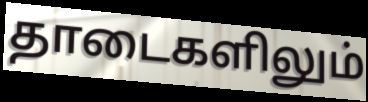
தாடைகளிலும்